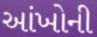
આંખોની